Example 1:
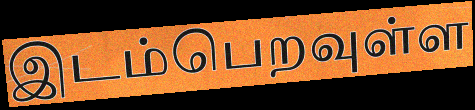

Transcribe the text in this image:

இடம்பெறவுள்ள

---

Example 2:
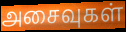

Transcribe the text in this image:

அசைவுகள்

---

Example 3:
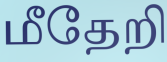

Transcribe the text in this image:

மீதேறி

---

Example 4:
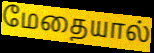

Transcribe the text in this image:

மேதையால்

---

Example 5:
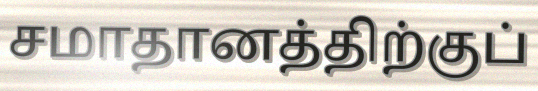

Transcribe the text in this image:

சமாதானத்திற்குப்